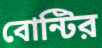
বোন্টির